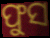
ଫୁସ